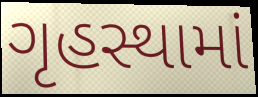
ગૃહસ્થામાં